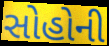
સોહોની